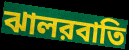
ঝালরবাতি